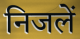
निजलें